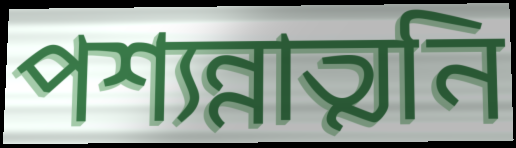
পশ্যন্নাত্মনি